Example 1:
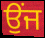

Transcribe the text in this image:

ਉੰਜ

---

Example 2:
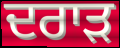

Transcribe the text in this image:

ਦਰਾੜ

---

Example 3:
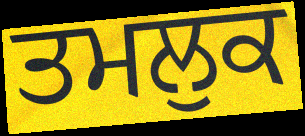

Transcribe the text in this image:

ਤਮਲੁਕ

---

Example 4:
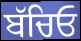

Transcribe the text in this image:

ਬੱਚਿਓ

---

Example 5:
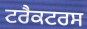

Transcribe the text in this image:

ਟਰੈਕਟਰਸ